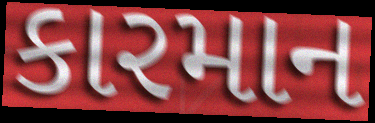
કારમાન